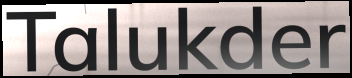
Talukder